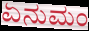
ಏನುಮಂ